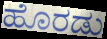
ಹೊರಡು